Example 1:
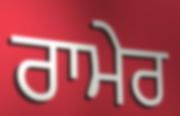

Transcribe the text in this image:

ਰਾਮੇਰ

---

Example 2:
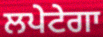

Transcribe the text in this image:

ਲਪੇਟੇਗਾ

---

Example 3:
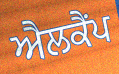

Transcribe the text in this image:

ਐਲਕੈਂਪ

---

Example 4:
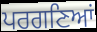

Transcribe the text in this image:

ਪਰਗਣਿਆਂ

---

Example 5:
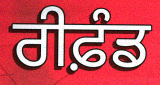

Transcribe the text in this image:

ਰੀਫ਼ੰਡ